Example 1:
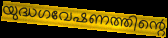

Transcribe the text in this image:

യുദ്ധഗവേഷണത്തിന്റെ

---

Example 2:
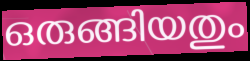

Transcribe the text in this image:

ഒരുങ്ങിയതും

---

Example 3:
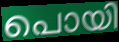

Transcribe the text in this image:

പൊയി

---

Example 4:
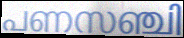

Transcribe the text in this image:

പണസഞ്ചി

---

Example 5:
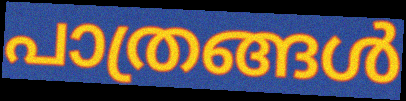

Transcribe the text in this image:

പാത്രങ്ങൾ